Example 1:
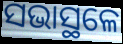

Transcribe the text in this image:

ସଭାସ୍ଥଳେ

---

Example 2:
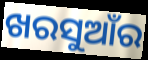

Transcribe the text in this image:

ଖରସୁଆଁର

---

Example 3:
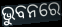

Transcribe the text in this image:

ଭୁବନରେ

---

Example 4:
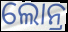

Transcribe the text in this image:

ଲୋନ୍ର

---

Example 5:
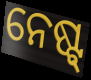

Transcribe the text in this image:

ନେଷ୍ଟ୍